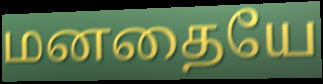
மனதையே